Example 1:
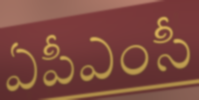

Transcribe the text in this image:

ఏపీఎంసీ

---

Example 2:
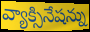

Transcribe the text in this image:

వ్యాక్సినేషన్ను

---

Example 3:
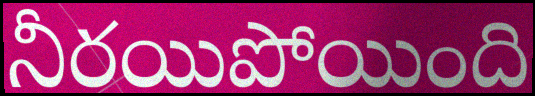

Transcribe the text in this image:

నీరయిపోయింది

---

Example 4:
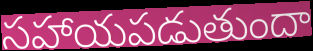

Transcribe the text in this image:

సహాయపడుతుందా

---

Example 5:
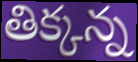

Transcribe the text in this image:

తిక్కన్న